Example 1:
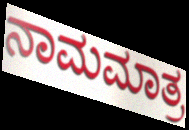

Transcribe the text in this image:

ನಾಮಮಾತ್ರ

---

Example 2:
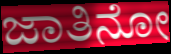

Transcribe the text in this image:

ಜಾತಿನೋ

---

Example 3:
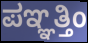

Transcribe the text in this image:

ಪಞ್ಞತ್ತಿಂ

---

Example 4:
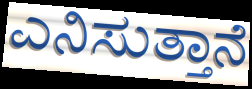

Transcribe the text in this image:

ಎನಿಸುತ್ತಾನೆ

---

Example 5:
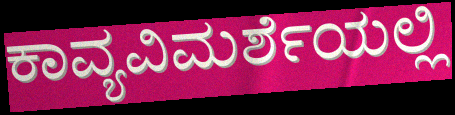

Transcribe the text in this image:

ಕಾವ್ಯವಿಮರ್ಶೆಯಲ್ಲಿ